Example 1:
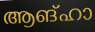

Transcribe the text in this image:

ആങ്ഹാ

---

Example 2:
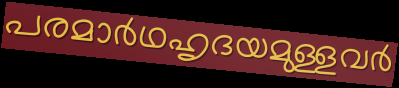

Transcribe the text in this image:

പരമാർഥഹൃദയമുള്ളവർ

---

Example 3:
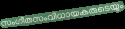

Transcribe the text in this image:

സംഗീതസംവിധായകരുടെയും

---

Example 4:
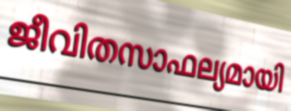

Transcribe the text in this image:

ജീവിതസാഫല്യമായി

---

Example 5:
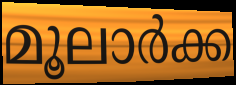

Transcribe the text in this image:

മൂലാർക്ക